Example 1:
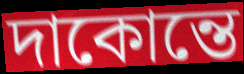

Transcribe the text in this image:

দাকোন্তে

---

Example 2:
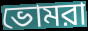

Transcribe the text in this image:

ভোমরা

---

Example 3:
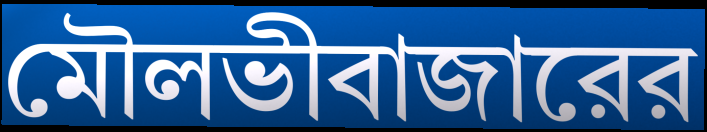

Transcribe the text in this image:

মৌলভীবাজারের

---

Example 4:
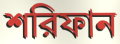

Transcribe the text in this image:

শরিফান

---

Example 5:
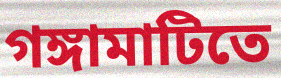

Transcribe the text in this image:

গঙ্গামাটিতে